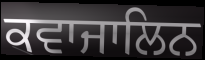
ਕਵਾਜਾਲਿਨ